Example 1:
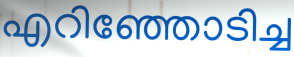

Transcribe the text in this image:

എറിഞ്ഞോടിച്ച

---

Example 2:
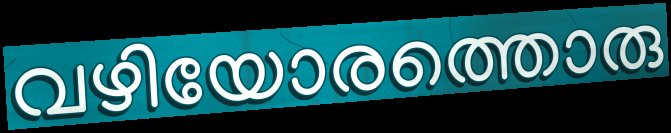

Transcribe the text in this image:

വഴിയോരത്തൊരു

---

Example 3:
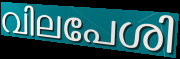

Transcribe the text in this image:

വിലപേശി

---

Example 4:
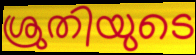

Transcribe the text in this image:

ശ്രുതിയുടെ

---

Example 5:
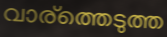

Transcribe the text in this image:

വാര്ത്തെടുത്ത